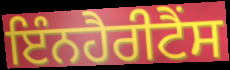
ਇੰਨਹੈਰੀਟੈੰਸ